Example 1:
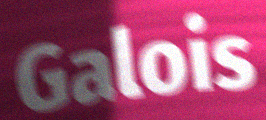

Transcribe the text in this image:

Galois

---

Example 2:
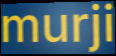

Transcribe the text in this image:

murji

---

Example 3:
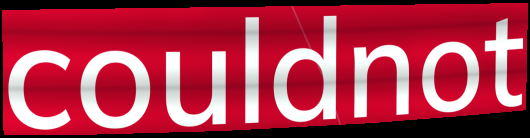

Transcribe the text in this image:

couldnot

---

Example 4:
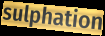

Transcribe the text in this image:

sulphation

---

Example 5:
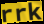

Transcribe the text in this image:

rrk